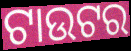
ଟାଉଟର